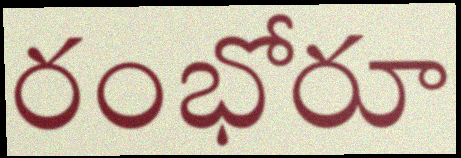
రంభోరూ